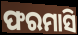
ଫରମାସି